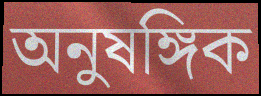
অনুষঙ্গিক